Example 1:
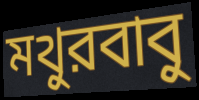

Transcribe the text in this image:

মথুরবাবু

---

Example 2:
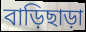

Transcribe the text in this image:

বাড়িছাড়া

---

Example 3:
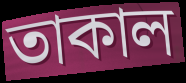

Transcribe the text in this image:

তাকাল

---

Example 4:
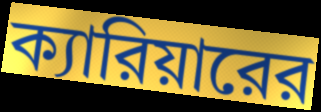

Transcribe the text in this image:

ক্যারিয়ারের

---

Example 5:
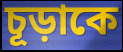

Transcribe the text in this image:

চূড়াকে